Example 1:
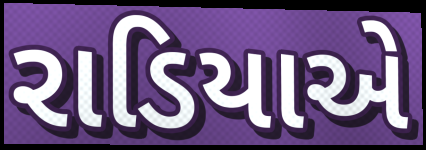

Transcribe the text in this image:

રાડિયાએ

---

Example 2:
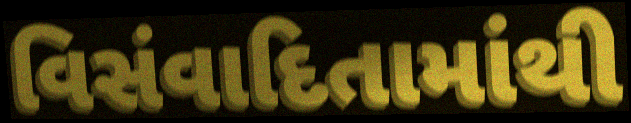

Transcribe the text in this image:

વિસંવાદિતામાંથી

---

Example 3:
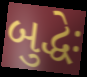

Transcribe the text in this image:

બુદ્ધેઃ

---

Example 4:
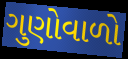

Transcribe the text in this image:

ગુણોવાળો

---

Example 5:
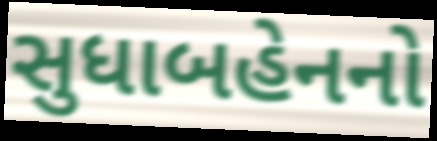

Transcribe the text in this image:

સુધાબહેનનો